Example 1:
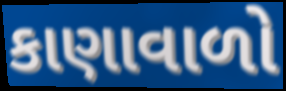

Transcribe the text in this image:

કાણાવાળો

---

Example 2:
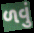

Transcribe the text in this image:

ળવું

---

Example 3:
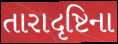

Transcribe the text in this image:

તારાદૃષ્ટિના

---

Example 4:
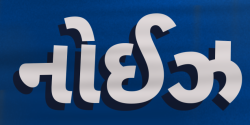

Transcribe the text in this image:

નોઈઝ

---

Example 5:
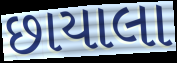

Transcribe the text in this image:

છાયાલા